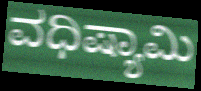
ವಧಿಷ್ಯಾಮಿ